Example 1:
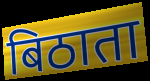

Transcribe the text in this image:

बिठाता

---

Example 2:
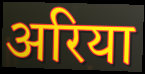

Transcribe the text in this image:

अरिया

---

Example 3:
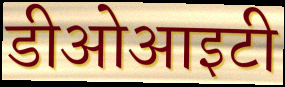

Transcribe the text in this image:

डीओआइटी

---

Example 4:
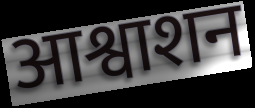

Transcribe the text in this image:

आश्वाशन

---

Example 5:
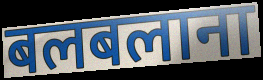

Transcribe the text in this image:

बलबलाना